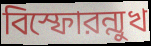
বিস্ফোরন্মুখ